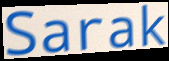
Sarak